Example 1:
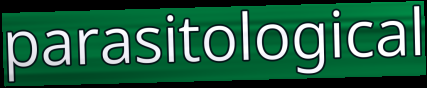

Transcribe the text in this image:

parasitological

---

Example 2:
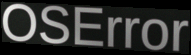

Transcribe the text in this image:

OSError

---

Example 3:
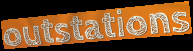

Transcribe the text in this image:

outstations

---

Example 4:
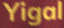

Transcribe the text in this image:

Yigal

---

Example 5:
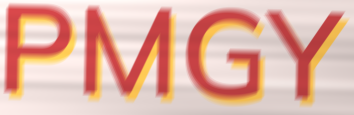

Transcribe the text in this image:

PMGY